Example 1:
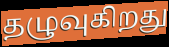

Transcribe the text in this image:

தழுவுகிறது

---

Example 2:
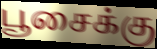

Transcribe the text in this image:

பூசைக்கு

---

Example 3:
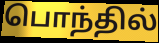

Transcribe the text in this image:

பொந்தில்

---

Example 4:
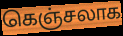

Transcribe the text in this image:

கெஞ்சலாக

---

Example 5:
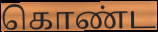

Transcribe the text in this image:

கொண்ட